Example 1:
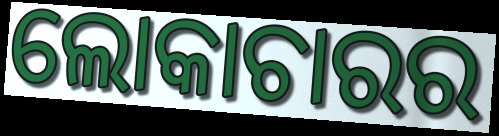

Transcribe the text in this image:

ଲୋକାଚାରର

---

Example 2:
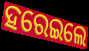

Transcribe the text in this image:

ହରେଇଲେ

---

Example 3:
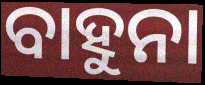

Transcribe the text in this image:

ବାହୁନା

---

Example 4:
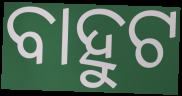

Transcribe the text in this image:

ବାହୁଟ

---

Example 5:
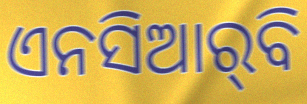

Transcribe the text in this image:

ଏନସିଆର୍‌ବି